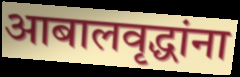
आबालवृद्धांना